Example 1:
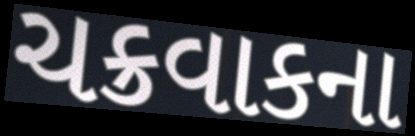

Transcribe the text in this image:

ચક્રવાકના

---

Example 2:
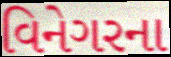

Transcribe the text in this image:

વિનેગરના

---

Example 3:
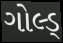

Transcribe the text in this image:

ગોલ્ડ્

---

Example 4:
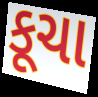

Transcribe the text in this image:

કૂચા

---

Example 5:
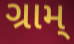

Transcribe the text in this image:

ગ્રામ્